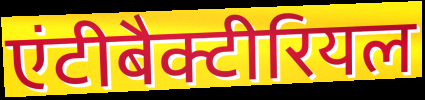
एंटीबैक्टीरियल